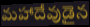
మహాదేవుడైన